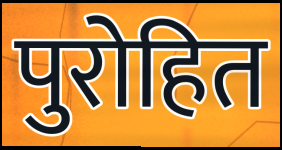
पुरोहित